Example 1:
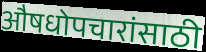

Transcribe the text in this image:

औषधोपचारांसाठी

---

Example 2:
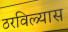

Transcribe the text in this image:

ठरविल्यास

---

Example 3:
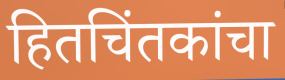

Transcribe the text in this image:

हितचिंतकांचा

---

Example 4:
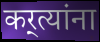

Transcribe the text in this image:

कर्त्यांना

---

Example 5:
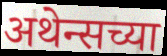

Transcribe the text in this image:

अथेन्सच्या